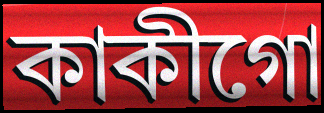
কাকীগো